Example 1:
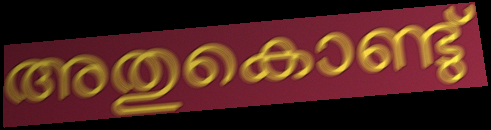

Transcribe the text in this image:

അതുകൊണ്ടു്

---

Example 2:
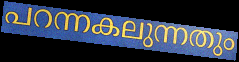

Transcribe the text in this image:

പറന്നകലുന്നതും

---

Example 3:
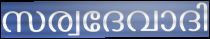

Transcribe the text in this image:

സര്വദേവാദി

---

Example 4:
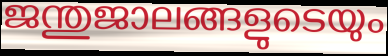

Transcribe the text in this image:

ജന്തുജാലങ്ങളുടെയും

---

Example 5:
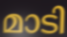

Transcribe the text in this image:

മാടി